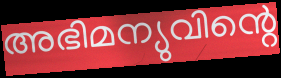
അഭിമന്യുവിന്റെ